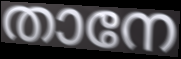
താനേ